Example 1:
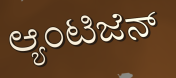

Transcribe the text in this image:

ಆ್ಯಂಟಿಜೆನ್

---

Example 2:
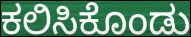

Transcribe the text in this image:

ಕಲಿಸಿಕೊಂಡು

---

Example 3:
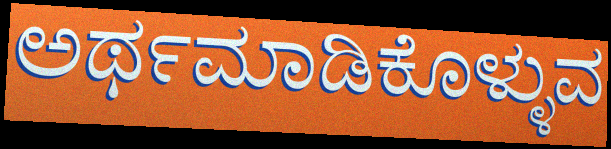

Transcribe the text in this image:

ಅರ್ಥಮಾಡಿಕೊಳ್ಳುವ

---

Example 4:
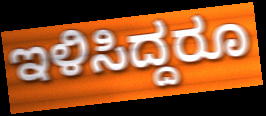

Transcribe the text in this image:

ಇಳಿಸಿದ್ದರೂ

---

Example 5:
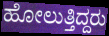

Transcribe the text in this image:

ಹೋಲುತ್ತಿದ್ದರು